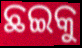
ଛଇକୁ